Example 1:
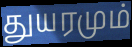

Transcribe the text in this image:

துயரமும்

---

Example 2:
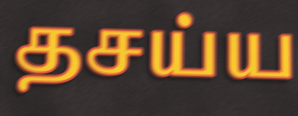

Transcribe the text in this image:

தசய்ய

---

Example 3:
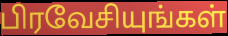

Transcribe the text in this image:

பிரவேசியுங்கள்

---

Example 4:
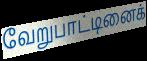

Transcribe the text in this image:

வேறுபாட்டினைக்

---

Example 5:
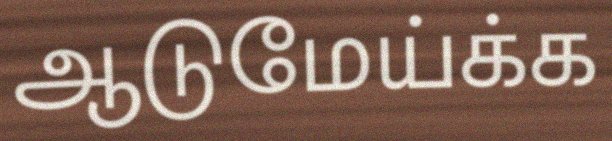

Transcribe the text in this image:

ஆடுமேய்க்க